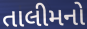
તાલીમનો